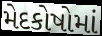
મેદકોષોમાં